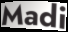
Madi